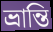
ভ্রান্তি